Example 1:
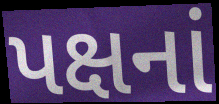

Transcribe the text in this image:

પક્ષનાં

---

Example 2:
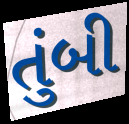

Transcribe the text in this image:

તુંબી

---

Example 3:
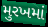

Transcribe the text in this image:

મુરખમાં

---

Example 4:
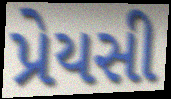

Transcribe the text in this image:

પ્રેયસી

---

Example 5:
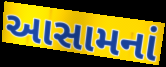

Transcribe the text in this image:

આસામનાં